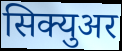
सिक्युअर